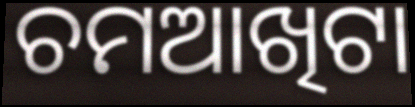
ଚମଆଖିଟା